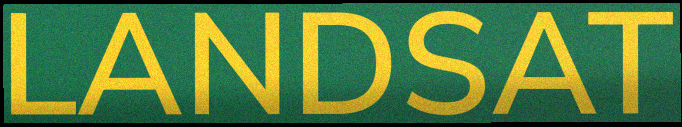
LANDSAT